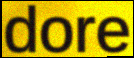
dore